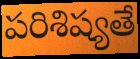
పరిశిష్యతే